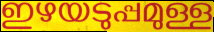
ഇഴയടുപ്പമുള്ള